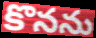
కొనను